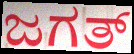
ಜಗತ್